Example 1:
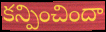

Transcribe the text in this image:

కన్పించిందా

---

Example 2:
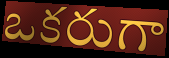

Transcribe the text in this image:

ఒకరుగా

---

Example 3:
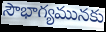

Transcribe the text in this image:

సౌభాగ్యమునకు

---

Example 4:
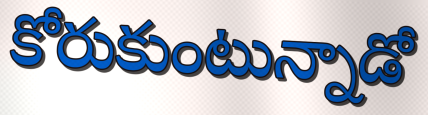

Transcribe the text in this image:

కోరుకుంటున్నాడో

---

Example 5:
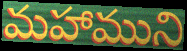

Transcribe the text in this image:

మహాముని